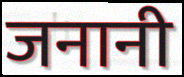
जनानी